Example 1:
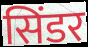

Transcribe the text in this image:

सिंडर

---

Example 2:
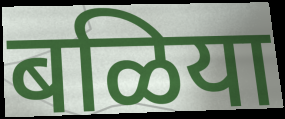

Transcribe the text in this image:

बळिया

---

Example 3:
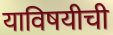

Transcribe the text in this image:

याविषयीची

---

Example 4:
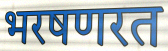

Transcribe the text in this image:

भरषणरत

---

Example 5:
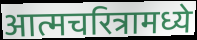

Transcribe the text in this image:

आत्मचरित्रामध्ये